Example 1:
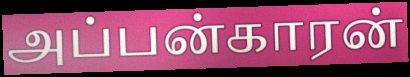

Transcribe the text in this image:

அப்பன்காரன்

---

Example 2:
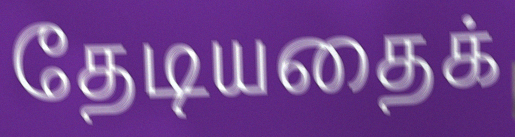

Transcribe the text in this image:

தேடியதைக்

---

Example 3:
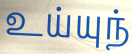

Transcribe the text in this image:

உய்யுந்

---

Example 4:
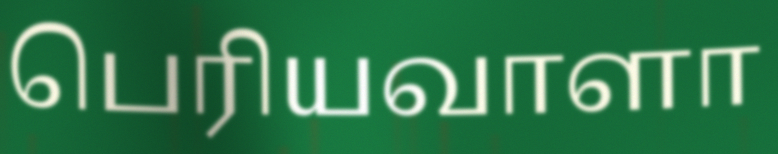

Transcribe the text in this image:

பெரியவாளா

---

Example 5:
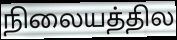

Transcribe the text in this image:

நிலையத்தில